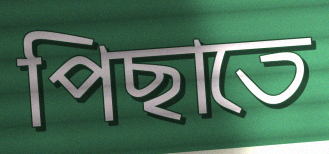
পিছাতে